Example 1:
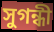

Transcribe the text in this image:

সুগন্ধী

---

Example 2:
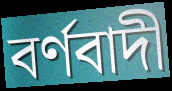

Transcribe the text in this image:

বৰ্ণবাদী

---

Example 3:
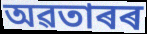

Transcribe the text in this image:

অৱতাৰৰ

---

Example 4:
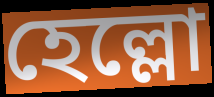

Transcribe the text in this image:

হেল্লো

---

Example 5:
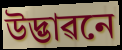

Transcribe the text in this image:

উদ্ভাৱনে